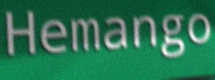
Hemango